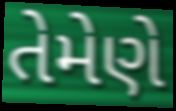
તેમેણે